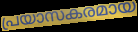
പ്രയാസകരമായ